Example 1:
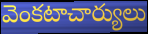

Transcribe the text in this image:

వెంకటాచార్యులు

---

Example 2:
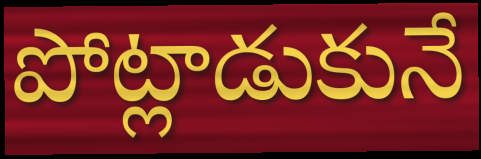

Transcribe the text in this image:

పోట్లాడుకునే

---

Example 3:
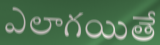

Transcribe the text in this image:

ఎలాగయితే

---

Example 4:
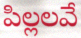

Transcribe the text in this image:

పిల్లలవే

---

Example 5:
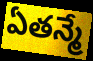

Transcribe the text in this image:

ఏతన్మే